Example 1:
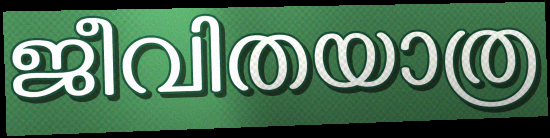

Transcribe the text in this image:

ജീവിതയാത്ര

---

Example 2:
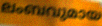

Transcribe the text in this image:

ലംബവുമായ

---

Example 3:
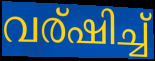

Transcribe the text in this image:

വര്ഷിച്ച്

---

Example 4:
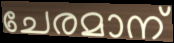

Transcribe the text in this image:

ചേരമാന്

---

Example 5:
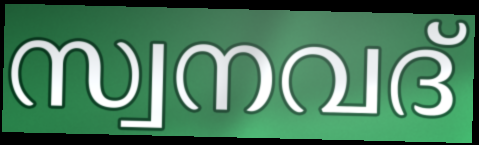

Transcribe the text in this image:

സ്വനവദ്